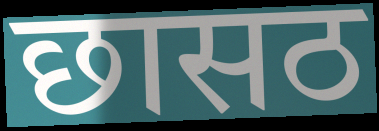
छासठ